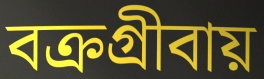
বক্রগ্রীবায়